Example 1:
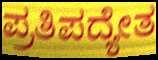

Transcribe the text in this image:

ಪ್ರತಿಪದ್ಯೇತ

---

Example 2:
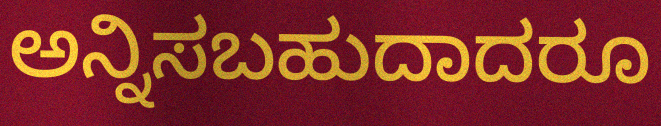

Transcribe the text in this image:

ಅನ್ನಿಸಬಹುದಾದರೂ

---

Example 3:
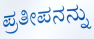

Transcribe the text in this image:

ಪ್ರತೀಪನನ್ನು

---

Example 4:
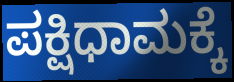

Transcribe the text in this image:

ಪಕ್ಷಿಧಾಮಕ್ಕೆ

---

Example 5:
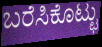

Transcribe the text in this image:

ಬರೆಸಿಕೊಟ್ಟು